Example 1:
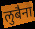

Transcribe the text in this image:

लुबैना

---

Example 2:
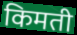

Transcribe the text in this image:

किमती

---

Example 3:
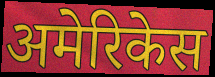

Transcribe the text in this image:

अमेरिकेस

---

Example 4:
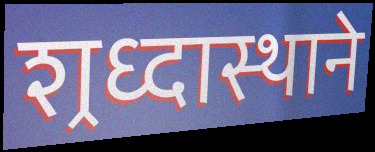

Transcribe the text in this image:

श्रध्दास्थाने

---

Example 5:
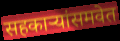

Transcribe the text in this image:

सहकाऱ्यांसमवेत